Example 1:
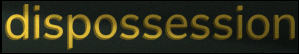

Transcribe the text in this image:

dispossession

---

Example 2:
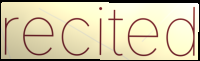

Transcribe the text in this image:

recited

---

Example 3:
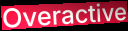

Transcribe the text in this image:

Overactive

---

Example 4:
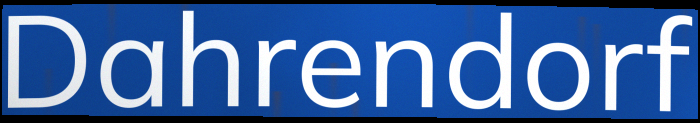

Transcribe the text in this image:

Dahrendorf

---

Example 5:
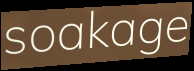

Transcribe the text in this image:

soakage